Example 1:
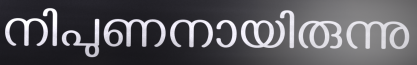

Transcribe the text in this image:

നിപുണനായിരുന്നു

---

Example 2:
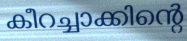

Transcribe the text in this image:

കീറച്ചാക്കിന്റെ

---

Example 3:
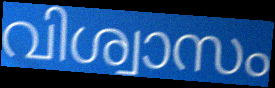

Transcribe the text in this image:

വിശ്വാസം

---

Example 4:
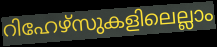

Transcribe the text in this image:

റിഹേഴ്സുകളിലെല്ലാം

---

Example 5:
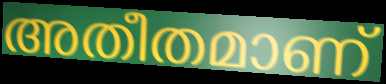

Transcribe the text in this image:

അതീതമാണ്